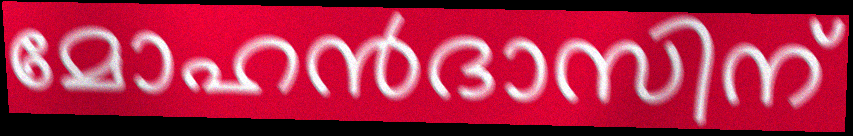
മോഹൻദാസിന്